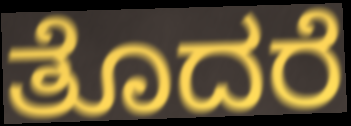
ತೊದರೆ